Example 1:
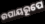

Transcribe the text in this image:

ଉପାୟରୂପେ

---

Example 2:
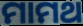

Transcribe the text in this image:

ମାମଥ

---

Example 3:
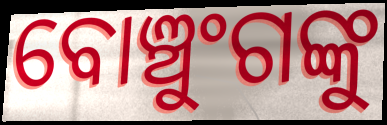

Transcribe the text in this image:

ବୋଞ୍ଚୁଂଗଙ୍କୁ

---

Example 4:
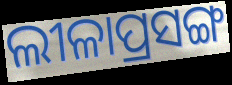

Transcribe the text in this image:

ଲୀଳାପ୍ରସଙ୍ଗ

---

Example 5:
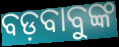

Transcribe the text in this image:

ବଡ଼ବାବୁଙ୍କ